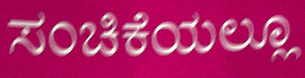
ಸಂಚಿಕೆಯಲ್ಲೂ